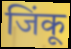
जिंकू